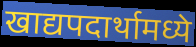
खाद्यपदार्थामध्ये